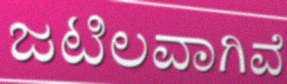
ಜಟಿಲವಾಗಿವೆ